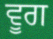
ਵੂਗ